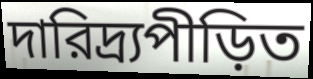
দারিদ্র্যপীড়িত